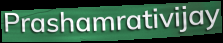
Prashamrativijay